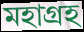
মহাগ্রহ